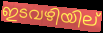
ഇടവഴിയില്